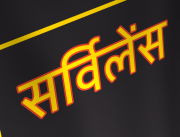
सर्विलेंस